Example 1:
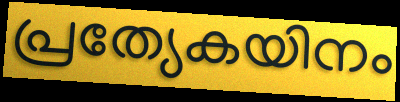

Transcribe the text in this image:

പ്രത്യേകയിനം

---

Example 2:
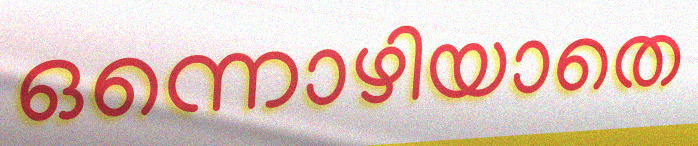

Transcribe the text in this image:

ഒന്നൊഴിയാതെ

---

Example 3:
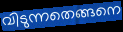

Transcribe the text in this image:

വിടുന്നതെങ്ങനെ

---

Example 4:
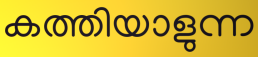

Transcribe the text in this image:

കത്തിയാളുന്ന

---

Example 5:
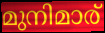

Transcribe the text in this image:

മുനിമാര്